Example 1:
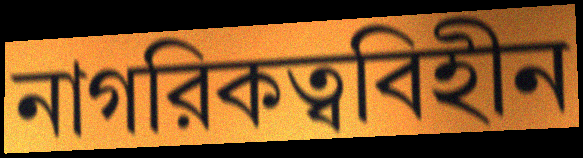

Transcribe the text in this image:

নাগরিকত্ববিহীন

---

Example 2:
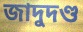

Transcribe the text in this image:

জাদুদণ্ড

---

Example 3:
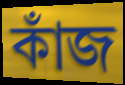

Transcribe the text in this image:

কাঁজ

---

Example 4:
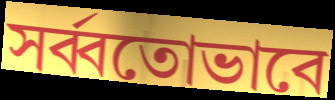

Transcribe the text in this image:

সর্ব্বতোভাবে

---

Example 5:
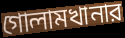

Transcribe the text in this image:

গোলামখানার